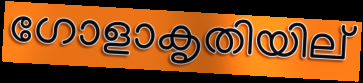
ഗോളാകൃതിയില്